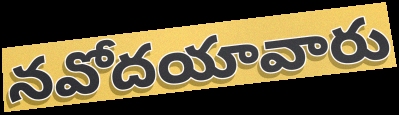
నవోదయావారు